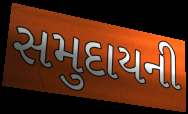
સમુદાયની